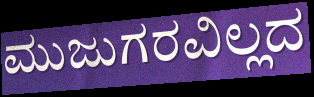
ಮುಜುಗರವಿಲ್ಲದ